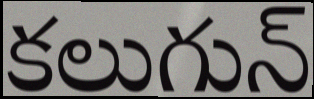
కలుగున్